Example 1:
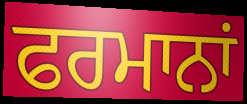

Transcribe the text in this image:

ਫਰਮਾਨਾਂ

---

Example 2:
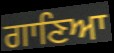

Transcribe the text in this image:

ਗਾਣਿਆ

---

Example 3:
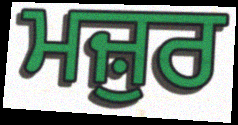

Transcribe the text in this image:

ਮਜ਼ੁਰ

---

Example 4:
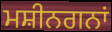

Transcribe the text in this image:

ਮਸ਼ੀਨਗਨਾਂ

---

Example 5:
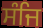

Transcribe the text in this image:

ਸੰਜਿ